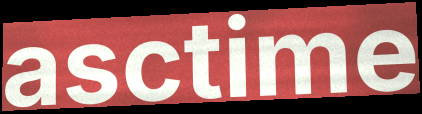
asctime